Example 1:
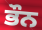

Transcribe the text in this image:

ਭੌਨ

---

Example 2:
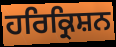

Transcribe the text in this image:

ਹਰਿਕ੍ਰਿਸ਼ਨ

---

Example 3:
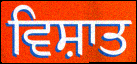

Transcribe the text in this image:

ਵਿਸ਼ਾਤ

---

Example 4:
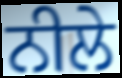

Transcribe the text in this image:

ਨੀਲੇ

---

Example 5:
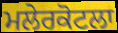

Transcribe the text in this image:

ਮਲੇਰਕੋਟਲਾ